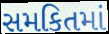
સમકિતમાં